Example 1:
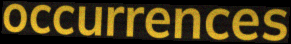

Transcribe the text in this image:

occurrences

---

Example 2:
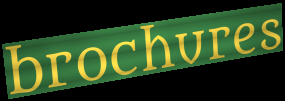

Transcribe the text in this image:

brochures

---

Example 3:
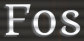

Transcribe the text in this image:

Fos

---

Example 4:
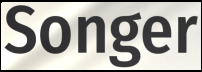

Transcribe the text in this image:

Songer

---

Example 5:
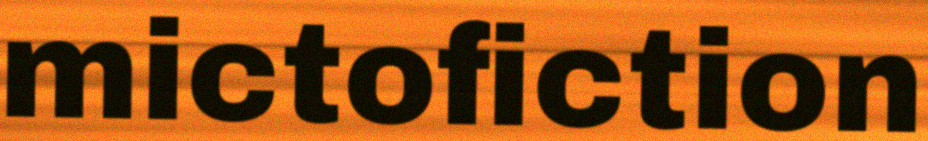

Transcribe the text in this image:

mictofiction